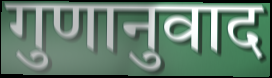
गुणानुवाद